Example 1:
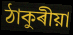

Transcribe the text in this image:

ঠাকুৰীয়া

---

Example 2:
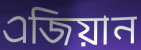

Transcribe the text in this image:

এজিয়ান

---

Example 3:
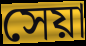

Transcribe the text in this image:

সেয়া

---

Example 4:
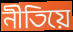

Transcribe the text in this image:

নীতিয়ে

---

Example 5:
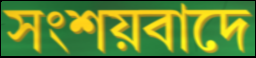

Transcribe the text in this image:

সংশয়বাদে